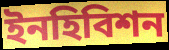
ইনহিবিশন